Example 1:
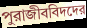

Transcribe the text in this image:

পুরাজীববিদদের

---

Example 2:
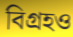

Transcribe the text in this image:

বিগ্রহও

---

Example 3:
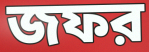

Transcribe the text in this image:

জফর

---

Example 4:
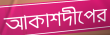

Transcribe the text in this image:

আকাশদীপের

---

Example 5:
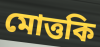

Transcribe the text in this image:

মোত্তকি